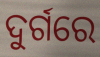
ଦୁର୍ଗରେ